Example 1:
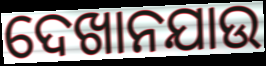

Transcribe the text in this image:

ଦେଖାନଯାଉ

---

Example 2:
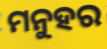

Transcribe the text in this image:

ମନୁହର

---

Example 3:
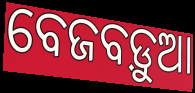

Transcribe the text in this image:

ବେଜବଡ଼ୁଆ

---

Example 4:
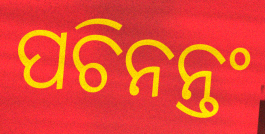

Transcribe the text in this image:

ପଚିନନ୍ତଂ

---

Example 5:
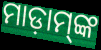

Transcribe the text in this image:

ମାଡ଼ାମ୍‌ଙ୍କ